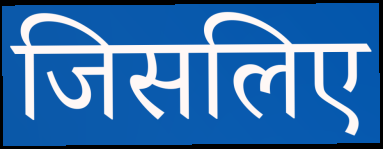
जिसलिए